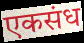
एकसंध